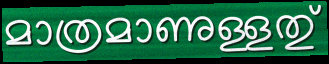
മാത്രമാണുള്ളതു്